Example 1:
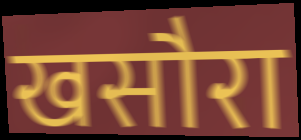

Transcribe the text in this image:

खसौरा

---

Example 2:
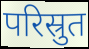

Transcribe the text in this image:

परिस्रुत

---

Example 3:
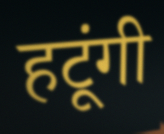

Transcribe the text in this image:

हटूंगी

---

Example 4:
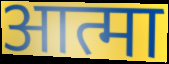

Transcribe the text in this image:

आत्‍मा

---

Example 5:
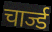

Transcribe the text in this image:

चार्ज्ड